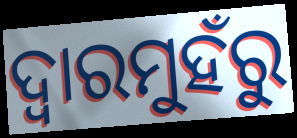
ଦ୍ଵାରମୁହଁରୁ